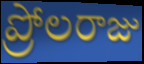
ప్రోలరాజు